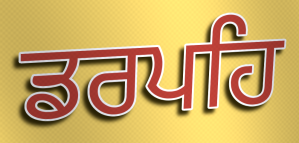
ਡਰਪਹਿ